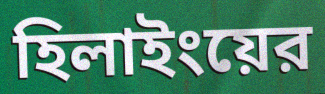
হিলাইংয়ের